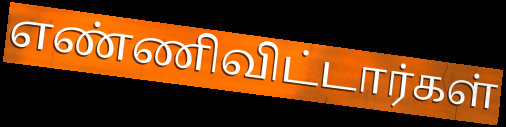
எண்ணிவிட்டார்கள்